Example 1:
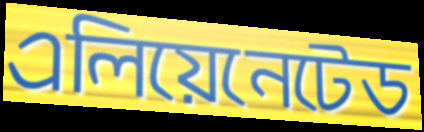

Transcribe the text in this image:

এলিয়েনেটেড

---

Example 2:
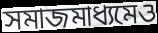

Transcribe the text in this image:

সমাজমাধ্যমেও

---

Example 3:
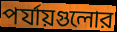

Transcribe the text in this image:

পর্যায়গুলোর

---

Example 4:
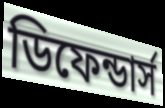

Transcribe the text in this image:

ডিফেন্ডার্স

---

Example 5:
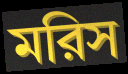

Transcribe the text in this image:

মরিস